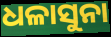
ଧଳାସୁନା